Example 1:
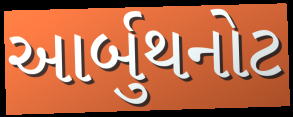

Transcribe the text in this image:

આર્બુથનોટ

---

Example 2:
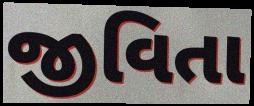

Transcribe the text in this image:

જીવિતા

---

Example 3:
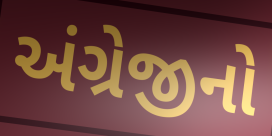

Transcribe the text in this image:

અંગ્રેજીનો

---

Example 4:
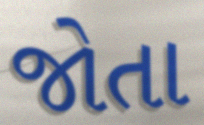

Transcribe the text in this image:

જોતા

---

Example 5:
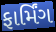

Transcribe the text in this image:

ફાર્મિંગ